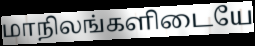
மாநிலங்களிடையே